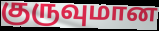
குருவுமான